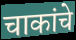
चाकांचे